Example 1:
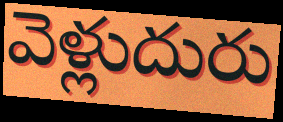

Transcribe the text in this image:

వెళ్లుదురు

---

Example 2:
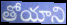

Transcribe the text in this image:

తోయాని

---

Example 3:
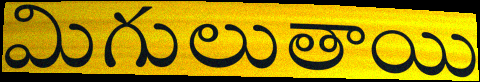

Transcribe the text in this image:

మిగులుతాయి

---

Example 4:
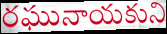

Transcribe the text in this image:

రఘునాయకుని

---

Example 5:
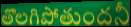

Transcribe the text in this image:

తొలగిపోతుందనీ